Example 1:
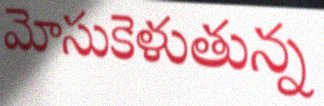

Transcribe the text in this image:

మోసుకెళుతున్న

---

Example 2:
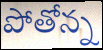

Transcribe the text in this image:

పోతోన్న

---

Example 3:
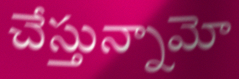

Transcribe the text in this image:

చేస్తున్నామో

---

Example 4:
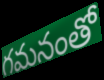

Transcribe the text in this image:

గమనంతో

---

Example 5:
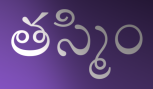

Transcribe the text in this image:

తస్మిం